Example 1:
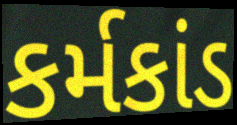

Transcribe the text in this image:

કર્મકાંડ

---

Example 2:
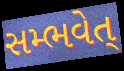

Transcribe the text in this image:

સમ્ભવેત્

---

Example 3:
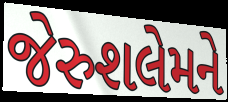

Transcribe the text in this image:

જેરુશલેમને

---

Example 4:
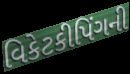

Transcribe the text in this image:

વિકેટકીપિંગની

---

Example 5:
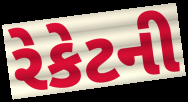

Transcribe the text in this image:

રેકેટની